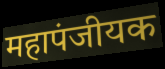
महापंजीयक